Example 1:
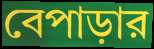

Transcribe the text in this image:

বেপাড়ার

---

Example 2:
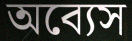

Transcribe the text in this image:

অব্যেস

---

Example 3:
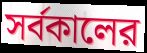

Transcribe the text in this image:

সর্বকালের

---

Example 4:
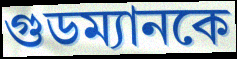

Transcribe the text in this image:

গুডম্যানকে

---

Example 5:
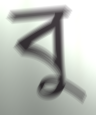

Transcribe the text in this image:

বু